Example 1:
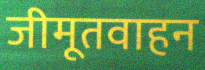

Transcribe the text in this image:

जीमूतवाहन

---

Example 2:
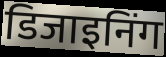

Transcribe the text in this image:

डिजाइनिंग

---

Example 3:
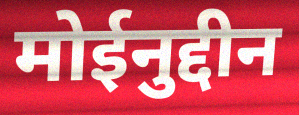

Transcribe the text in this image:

मोईनुद्दीन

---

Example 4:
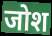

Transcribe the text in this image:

जोश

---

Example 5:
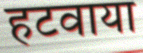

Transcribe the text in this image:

हटवाया